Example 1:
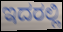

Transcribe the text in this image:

ಇದರಲ್ಲಿ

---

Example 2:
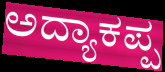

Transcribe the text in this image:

ಅದ್ಯಾಕಪ್ಪ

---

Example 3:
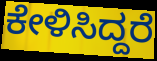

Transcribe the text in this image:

ಕೇಳಿಸಿದ್ದರೆ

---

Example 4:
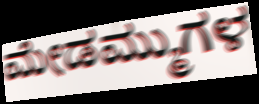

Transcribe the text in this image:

ಮೇಡಮ್ಮುಗಳ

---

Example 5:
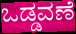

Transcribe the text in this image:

ಒಡ್ಡವಣೆ